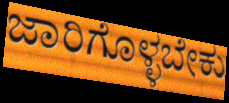
ಜಾರಿಗೊಳ್ಳಬೇಕು